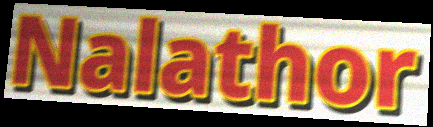
Nalathor